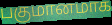
பகுமானமாக